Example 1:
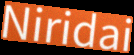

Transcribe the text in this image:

Niridai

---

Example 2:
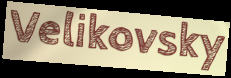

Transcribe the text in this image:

Velikovsky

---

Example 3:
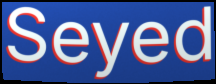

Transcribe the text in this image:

Seyed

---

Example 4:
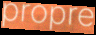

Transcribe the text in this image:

propre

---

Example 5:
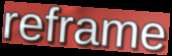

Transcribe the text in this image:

reframe